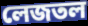
লেজতল